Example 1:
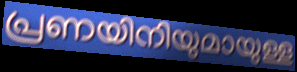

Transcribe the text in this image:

പ്രണയിനിയുമായുള്ള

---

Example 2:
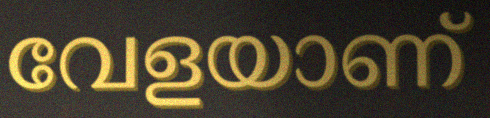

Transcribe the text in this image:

വേളയാണ്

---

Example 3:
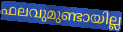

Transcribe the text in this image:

ഫലവുമുണ്ടായില്ല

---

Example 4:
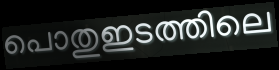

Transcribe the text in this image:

പൊതുഇടത്തിലെ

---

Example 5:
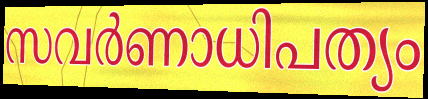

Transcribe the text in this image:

സവർണാധിപത്യം